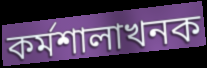
কৰ্মশালাখনক